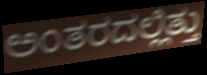
ಅಂತರದಲ್ಲಿತ್ತು